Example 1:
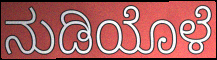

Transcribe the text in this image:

ನುಡಿಯೊಳೆ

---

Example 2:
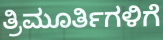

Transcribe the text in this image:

ತ್ರಿಮೂರ್ತಿಗಳಿಗೆ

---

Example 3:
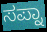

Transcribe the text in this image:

ಸಪ್ನಾ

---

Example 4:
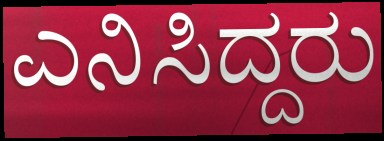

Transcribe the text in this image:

ಎನಿಸಿದ್ದರು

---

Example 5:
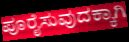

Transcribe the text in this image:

ಪೂರೈಸುವುದಕ್ಕಾಗಿ